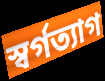
স্বর্গত্যাগ